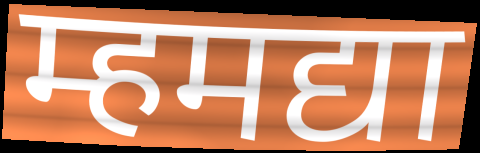
म्हमद्या